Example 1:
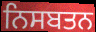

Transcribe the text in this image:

ਨਿਸਬਤਨ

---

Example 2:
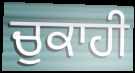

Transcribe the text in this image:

ਚੁਕਾਹੀ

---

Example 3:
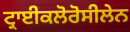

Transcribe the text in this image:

ਟ੍ਰਾਈਕਲੋਰੋਸੀਲੇਨ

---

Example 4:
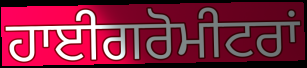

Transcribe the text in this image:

ਹਾਈਗਰੋਮੀਟਰਾਂ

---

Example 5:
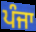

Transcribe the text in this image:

ਪੰਜਾ